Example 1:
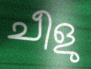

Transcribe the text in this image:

ചീളു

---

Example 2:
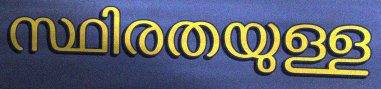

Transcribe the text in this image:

സ്ഥിരതയുള്ള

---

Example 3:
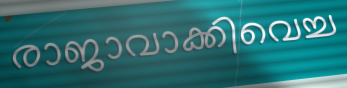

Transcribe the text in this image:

രാജാവാക്കിവെച്ച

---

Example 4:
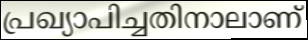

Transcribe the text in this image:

പ്രഖ്യാപിച്ചതിനാലാണ്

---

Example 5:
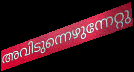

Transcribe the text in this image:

അവിടുന്നെഴുന്നേറ്റു